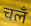
चलँ